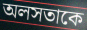
অলসতাকে